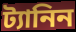
ট্যানিন